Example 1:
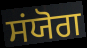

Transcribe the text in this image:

ਸਂਯੋਗ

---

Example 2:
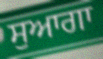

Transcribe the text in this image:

ਸੁਆਗਾ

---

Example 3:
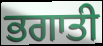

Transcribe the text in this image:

ਭਗਾਤੀ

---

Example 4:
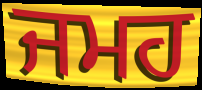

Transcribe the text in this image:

ਜਮਹ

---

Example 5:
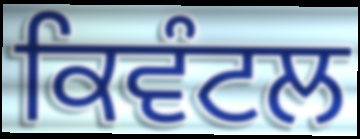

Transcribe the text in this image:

ਕਿਵੰਟਲ